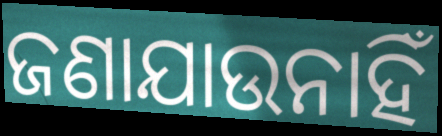
ଜଣାଯାଉନାହିଁ